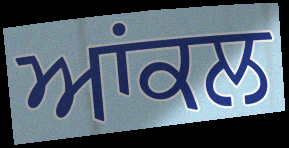
ਆਂਕਲ